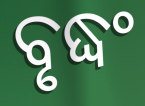
ବୃଦ୍ଧଂ